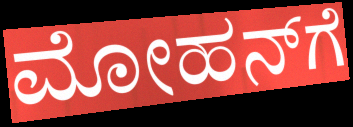
ಮೋಹನ್‌ಗೆ